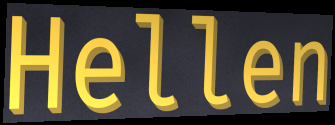
Hellen